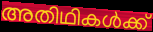
അതിഥികൾക്ക്